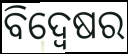
ବିଦ୍ୱେଷର